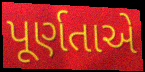
પૂર્ણતાએ